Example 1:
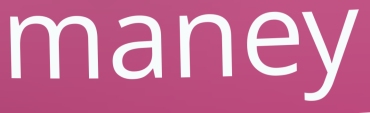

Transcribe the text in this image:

maney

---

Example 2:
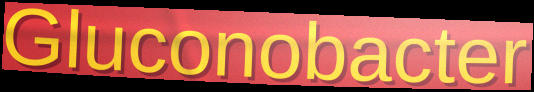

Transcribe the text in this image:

Gluconobacter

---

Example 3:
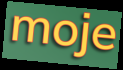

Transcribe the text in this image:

moje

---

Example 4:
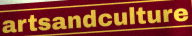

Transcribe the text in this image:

artsandculture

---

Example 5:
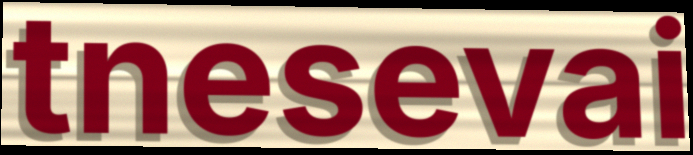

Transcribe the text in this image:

tnesevai